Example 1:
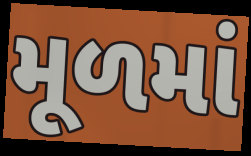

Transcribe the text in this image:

મૂળમાં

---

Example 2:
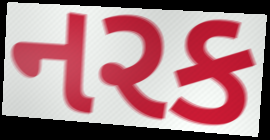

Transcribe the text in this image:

નરક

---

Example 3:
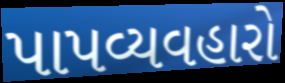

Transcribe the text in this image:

પાપવ્યવહારો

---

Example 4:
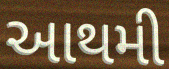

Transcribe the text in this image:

આથમી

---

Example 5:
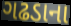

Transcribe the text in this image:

ગઢડાના